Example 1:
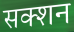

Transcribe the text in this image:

सक्शन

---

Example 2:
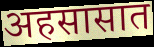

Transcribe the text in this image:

अहसासात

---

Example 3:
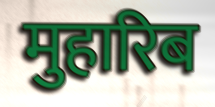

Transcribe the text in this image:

मुहारिब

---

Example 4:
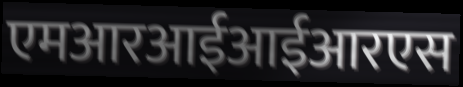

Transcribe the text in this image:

एमआरआईआईआरएस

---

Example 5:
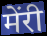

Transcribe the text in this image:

मेंरी